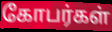
கோபர்கள்